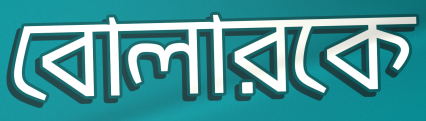
বোলারকে